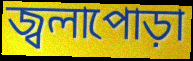
জ্বলাপোড়া